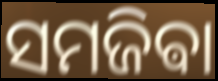
ସମଜିଵା